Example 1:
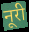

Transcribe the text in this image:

नूरी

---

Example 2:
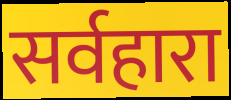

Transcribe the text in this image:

सर्वहारा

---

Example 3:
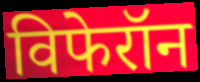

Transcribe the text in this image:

विफेरॉन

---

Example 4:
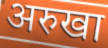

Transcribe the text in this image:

अरुखा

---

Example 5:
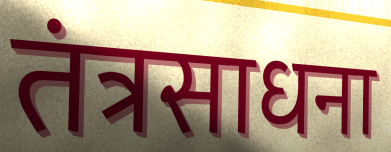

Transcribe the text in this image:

तंत्रसाधना